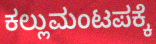
ಕಲ್ಲುಮಂಟಪಕ್ಕೆ